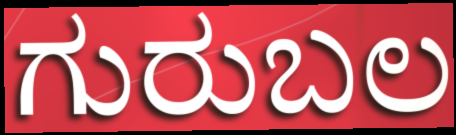
ಗುರುಬಲ